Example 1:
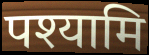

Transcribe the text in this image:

पश्यामि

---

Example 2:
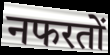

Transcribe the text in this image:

नफरतों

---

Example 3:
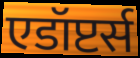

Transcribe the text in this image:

एडॉप्टर्स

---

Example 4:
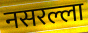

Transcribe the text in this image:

नसरल्ला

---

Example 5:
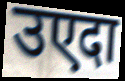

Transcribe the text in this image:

उएदा